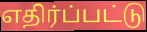
எதிர்ப்பட்டு